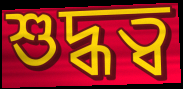
শুদ্ধত্ব